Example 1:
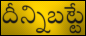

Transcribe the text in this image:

దీన్నిబట్టే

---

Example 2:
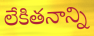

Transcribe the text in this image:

లేకితనాన్ని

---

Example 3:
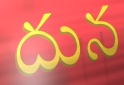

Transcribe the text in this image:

దున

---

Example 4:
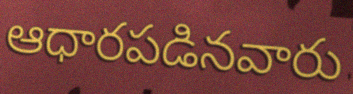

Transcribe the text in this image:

ఆధారపడినవారు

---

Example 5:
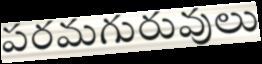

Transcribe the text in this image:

పరమగురువులు